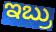
ಇಬ್ರು